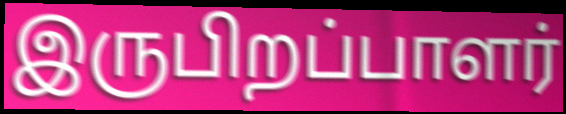
இருபிறப்பாளர்